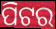
ପିଟର